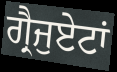
ਗ੍ਰੈਜੁਏਟਾਂ